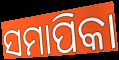
ସମାପିକା